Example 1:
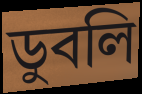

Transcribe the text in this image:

ডুবলি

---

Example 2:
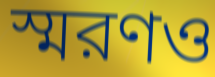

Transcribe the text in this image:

স্মরণও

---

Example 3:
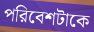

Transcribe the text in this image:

পরিবেশটাকে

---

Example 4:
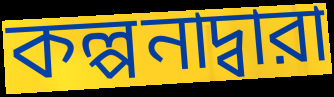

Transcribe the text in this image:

কল্পনাদ্বারা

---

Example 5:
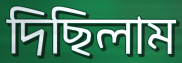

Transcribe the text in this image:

দিছিলাম